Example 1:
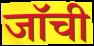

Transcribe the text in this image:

जॉची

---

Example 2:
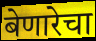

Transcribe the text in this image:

बेणारेचा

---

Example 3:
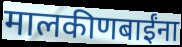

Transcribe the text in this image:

मालकीणबाईंना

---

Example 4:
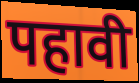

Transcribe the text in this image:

पहावी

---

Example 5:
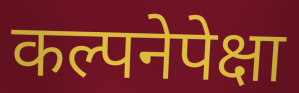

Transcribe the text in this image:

कल्पनेपेक्षा